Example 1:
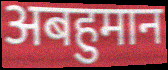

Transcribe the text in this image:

अबहुमान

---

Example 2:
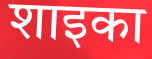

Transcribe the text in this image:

शाइका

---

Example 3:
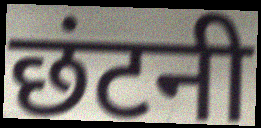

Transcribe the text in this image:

छंटनी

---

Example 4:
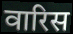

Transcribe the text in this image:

वारिस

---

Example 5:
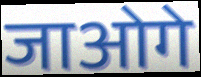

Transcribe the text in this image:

जाओगे